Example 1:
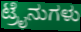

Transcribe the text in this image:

ಟ್ರೈನುಗಳು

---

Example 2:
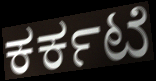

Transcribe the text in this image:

ಕರ್ಕಟೆ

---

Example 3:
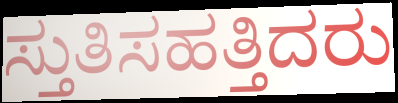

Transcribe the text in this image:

ಸ್ತುತಿಸಹತ್ತಿದರು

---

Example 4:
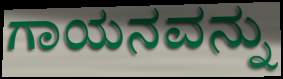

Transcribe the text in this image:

ಗಾಯನವನ್ನು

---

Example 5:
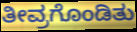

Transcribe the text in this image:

ತೀವ್ರಗೊಂಡಿತು